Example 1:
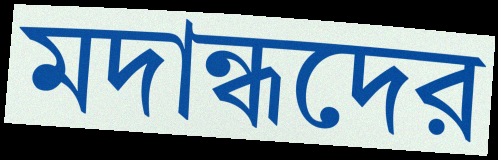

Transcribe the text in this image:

মদান্ধদের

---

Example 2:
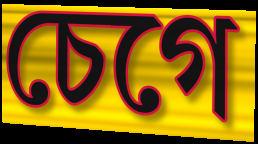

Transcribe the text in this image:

চেগে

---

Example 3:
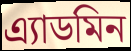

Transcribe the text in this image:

এ্যাডমিন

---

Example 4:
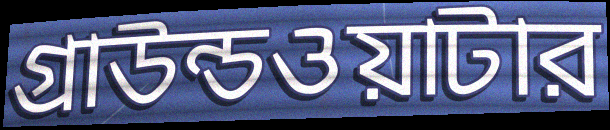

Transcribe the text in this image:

গ্রাউন্ডওয়াটার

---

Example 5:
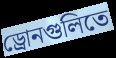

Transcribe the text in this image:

ড্রোনগুলিতে